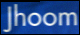
Jhoom